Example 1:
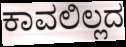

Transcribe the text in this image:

ಕಾವಲಿಲ್ಲದ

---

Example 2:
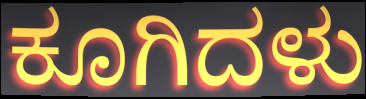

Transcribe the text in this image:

ಕೂಗಿದಳು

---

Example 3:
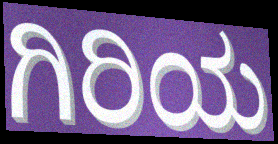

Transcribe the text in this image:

ಗಿರಿಯ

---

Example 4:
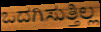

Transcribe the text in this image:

ಒದಗಿಸುತ್ತಿಲ್ಲ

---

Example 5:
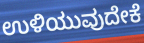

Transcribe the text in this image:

ಉಳಿಯುವುದೇಕೆ